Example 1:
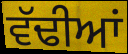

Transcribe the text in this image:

ਵੱਢੀਆਂ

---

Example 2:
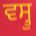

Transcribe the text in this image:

ਵਸ੍ਤੁ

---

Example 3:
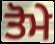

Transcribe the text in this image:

ਤੋਮੇ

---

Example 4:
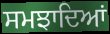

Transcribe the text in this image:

ਸਮਝਾਦਿਆਂ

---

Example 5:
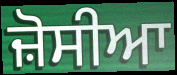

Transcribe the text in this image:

ਜ਼ੋਸੀਆ